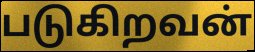
படுகிறவன்